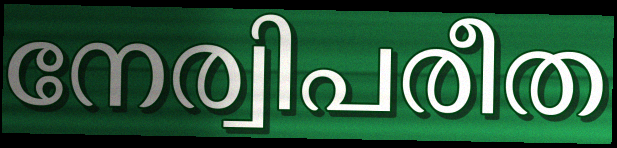
നേര്വിപരീത